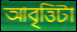
আবৃত্তিটা